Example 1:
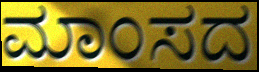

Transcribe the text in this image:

ಮಾಂಸದ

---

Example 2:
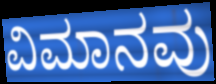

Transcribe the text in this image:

ವಿಮಾನವು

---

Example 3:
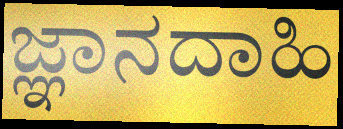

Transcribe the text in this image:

ಜ್ಞಾನದಾಹಿ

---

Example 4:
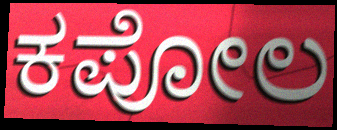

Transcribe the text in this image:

ಕಪೋಲ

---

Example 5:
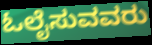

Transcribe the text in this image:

ಓಲೈಸುವವರು